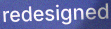
redesigned